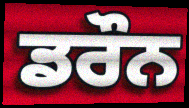
ਡਰੌਨ